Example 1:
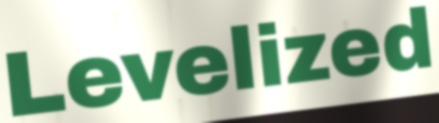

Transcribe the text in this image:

Levelized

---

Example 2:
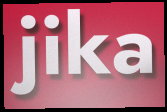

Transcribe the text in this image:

jika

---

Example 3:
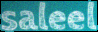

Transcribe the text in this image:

saleel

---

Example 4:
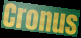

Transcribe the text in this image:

Cronus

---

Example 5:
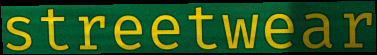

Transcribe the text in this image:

streetwear